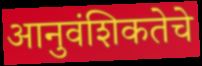
आनुवंशिकतेचे